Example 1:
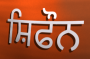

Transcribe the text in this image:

ਸ਼ਿਫੌਨ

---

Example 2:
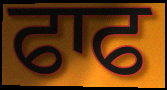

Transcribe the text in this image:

ਫਾਫ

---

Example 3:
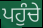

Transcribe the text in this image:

ਪਹੁੰਚੇ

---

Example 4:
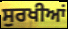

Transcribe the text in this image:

ਸੁਰਖੀਆਂ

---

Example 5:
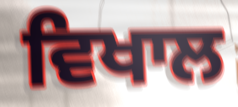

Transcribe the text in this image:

ਵਿਖਾਲ